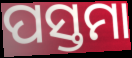
ପସ୍ତମା